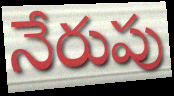
నేరుపు